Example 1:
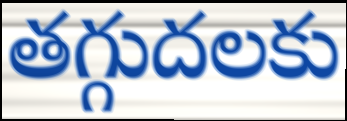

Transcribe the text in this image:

తగ్గుదలకు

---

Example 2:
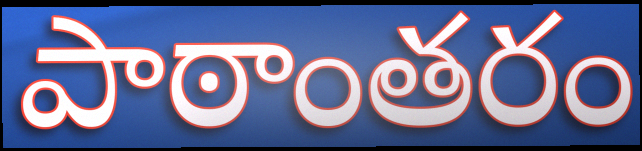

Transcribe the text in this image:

పాఠాంతరం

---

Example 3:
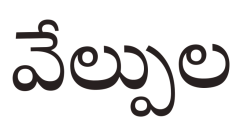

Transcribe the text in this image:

వేల్పుల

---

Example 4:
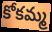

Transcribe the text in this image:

కోకమ్మ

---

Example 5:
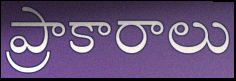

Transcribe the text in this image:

ప్రాకారాలు